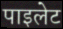
पाइलेट